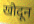
खोदून